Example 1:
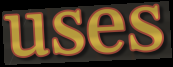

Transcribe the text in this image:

uses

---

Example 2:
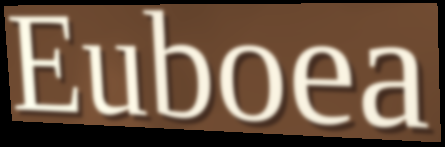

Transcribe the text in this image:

Euboea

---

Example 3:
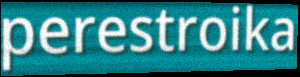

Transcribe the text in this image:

perestroika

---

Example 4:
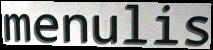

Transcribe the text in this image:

menulis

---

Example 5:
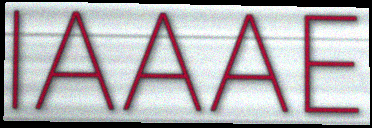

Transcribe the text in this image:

IAAAE